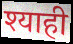
श्याही